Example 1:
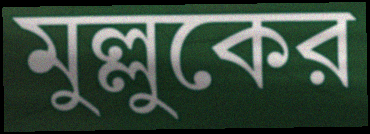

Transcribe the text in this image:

মুল্লুকের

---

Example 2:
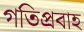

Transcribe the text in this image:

গতিপ্রবাহ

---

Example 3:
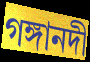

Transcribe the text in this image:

গঙ্গানদী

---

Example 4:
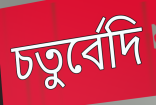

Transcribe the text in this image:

চতুর্বেদি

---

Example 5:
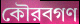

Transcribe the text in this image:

কৌরবগণ